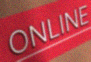
ONLINE